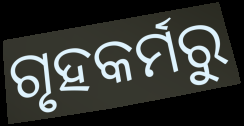
ଗୃହକର୍ମରୁ